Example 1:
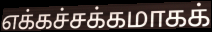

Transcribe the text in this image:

எக்கச்சக்கமாகக்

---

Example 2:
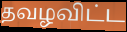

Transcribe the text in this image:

தவழவிட்ட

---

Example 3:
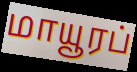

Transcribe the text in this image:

மாயூரப்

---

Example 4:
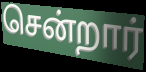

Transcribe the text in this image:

சென்றார்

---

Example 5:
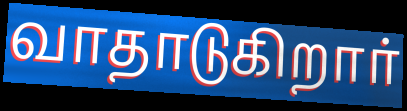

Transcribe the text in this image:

வாதாடுகிறார்